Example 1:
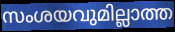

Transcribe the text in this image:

സംശയവുമില്ലാത്ത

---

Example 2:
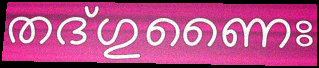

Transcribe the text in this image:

തദ്ഗുണൈഃ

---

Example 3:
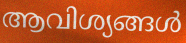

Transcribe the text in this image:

ആവിശ്യങ്ങൾ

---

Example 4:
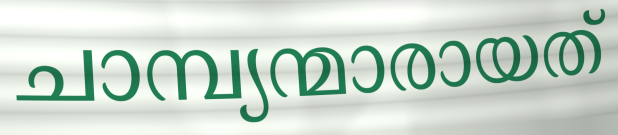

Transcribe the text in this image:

ചാമ്പ്യന്മാരായത്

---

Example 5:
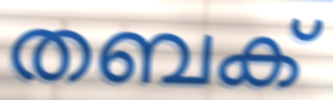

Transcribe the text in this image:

തബക്